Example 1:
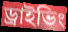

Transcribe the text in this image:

ড্রাইভিং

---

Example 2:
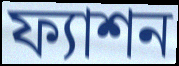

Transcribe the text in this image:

ফ্যাশন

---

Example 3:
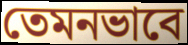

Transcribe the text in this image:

তেমনভাবে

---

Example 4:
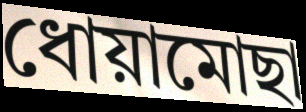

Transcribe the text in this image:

ধোয়ামোছা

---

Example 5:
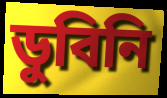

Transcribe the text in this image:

ডুবিনি